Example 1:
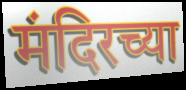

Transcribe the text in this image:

मंदिरच्या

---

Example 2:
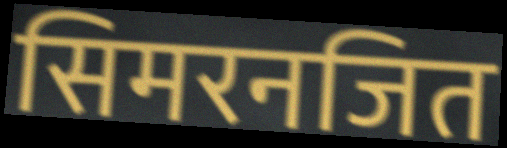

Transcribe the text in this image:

सिमरनजित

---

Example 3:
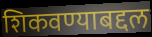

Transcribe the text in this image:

शिकवण्याबद्दल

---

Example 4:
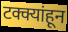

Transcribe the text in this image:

टक्क्यांहून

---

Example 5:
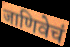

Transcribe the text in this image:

जाणिवेचं